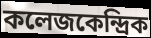
কলেজকেন্দ্রিক